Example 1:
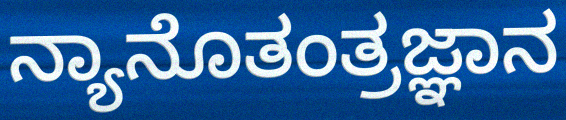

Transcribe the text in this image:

ನ್ಯಾನೊತಂತ್ರಜ್ಞಾನ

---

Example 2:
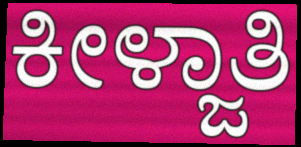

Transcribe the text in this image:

ಕೀಳ್ಜಾತಿ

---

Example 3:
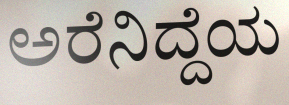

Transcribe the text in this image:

ಅರೆನಿದ್ದೆಯ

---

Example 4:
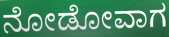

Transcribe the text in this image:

ನೋಡೋವಾಗ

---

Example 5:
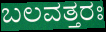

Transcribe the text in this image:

ಬಲವತ್ತರಃ